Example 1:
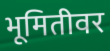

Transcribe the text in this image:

भूमितीवर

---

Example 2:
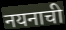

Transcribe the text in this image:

नयनाची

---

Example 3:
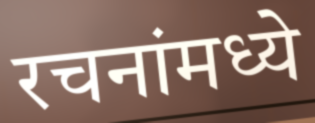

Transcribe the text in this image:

रचनांमध्ये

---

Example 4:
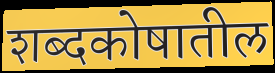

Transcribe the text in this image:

शब्दकोषातील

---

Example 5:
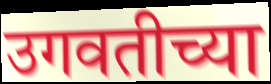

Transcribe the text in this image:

उगवतीच्या